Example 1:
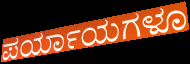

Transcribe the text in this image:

ಪರ್ಯಾಯಗಳೂ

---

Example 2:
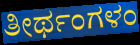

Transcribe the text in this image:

ತೀರ್ಥಂಗಳಂ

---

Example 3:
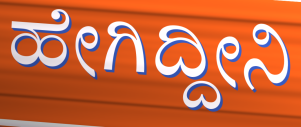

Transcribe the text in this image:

ಹೇಗಿದ್ದೀನಿ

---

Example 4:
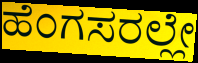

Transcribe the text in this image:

ಹೆಂಗಸರಲ್ಲೇ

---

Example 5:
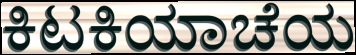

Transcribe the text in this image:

ಕಿಟಕಿಯಾಚೆಯ